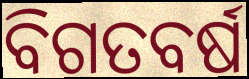
ବିଗତବର୍ଷ